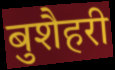
बुशैहरी